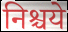
निश्चये